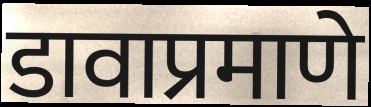
डावाप्रमाणे